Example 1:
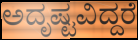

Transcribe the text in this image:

ಅದೃಷ್ಟವಿದ್ದರೆ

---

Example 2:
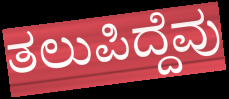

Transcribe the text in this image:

ತಲುಪಿದ್ದೆವು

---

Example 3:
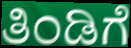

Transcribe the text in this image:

ತಿಂಡಿಗೆ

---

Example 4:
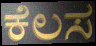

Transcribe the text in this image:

ಕೆಲಸ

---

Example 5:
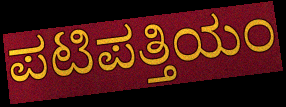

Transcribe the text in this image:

ಪಟಿಪತ್ತಿಯಂ